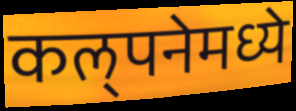
कल्पनेमध्ये